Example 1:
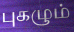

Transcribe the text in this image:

புகழும்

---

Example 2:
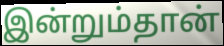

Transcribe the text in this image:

இன்றும்தான்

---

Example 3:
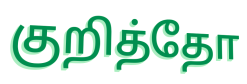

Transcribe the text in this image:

குறித்தோ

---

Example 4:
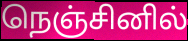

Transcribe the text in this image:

நெஞ்சினில்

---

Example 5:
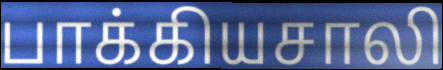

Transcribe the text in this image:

பாக்கியசாலி